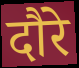
दौरे